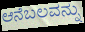
ಆನೆಬಲವನ್ನು